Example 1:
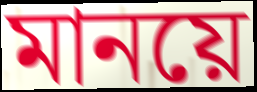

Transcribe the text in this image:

মানয়ে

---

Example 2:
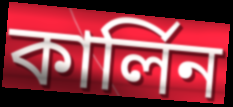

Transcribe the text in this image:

কার্লিন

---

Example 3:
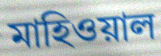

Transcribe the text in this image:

মাহিওয়াল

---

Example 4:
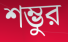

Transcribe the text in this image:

শম্ভুর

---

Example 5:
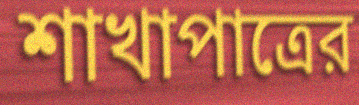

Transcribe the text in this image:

শাখাপাত্রের